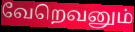
வேறெவனும்